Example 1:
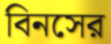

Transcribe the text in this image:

বিনসের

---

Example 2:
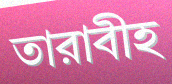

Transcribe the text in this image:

তারাবীহ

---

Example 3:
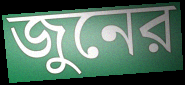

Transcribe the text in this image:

জুনের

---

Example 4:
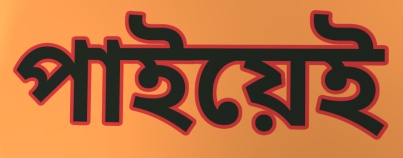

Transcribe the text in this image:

পাইয়েই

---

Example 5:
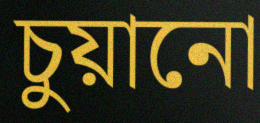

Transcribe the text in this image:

চুয়ানো